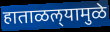
हाताळल्यामुळे